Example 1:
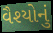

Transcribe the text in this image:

વૈશ્યોનું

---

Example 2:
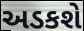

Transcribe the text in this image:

અડકશે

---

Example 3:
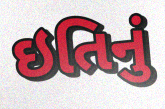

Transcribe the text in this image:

ઇતિનું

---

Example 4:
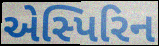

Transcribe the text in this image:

એસ્પિરિન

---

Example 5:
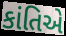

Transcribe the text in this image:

કાંતિએ